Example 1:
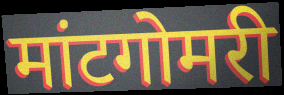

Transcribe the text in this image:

मांटगोमरी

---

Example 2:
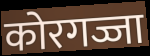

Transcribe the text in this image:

कोरगज्जा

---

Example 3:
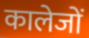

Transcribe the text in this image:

कालेजों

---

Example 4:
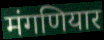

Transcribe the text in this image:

मंगणियार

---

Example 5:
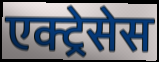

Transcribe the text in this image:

एक्ट्रेसेस